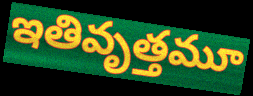
ఇతివృత్తమూ